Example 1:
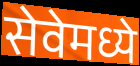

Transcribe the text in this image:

सेवेमध्ये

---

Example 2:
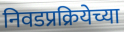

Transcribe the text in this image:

निवडप्रक्रियेच्या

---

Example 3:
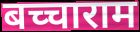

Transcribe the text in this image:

बच्चाराम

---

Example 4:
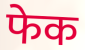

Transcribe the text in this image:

फेक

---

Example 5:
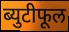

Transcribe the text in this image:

ब्युटीफूल